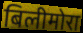
बिलीमोरा